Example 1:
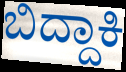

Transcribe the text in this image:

ಬಿದ್ದಾಕಿ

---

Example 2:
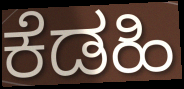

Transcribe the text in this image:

ಕೆಡಹಿ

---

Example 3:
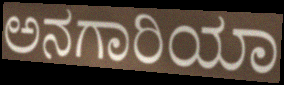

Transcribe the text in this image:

ಅನಗಾರಿಯಾ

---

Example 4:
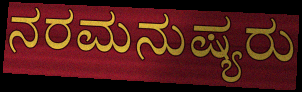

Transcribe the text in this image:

ನರಮನುಷ್ಯರು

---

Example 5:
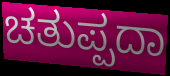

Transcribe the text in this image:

ಚತುಪ್ಪದಾ